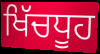
ਖਿੱਚਧੂਹ